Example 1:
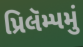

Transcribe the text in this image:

પ્રિલૅમ્પમું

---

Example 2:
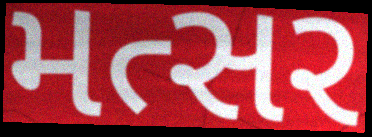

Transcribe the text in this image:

મત્સર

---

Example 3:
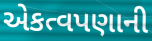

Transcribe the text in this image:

એકત્વપણાની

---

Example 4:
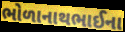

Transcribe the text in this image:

ભોળાનાથભાઈના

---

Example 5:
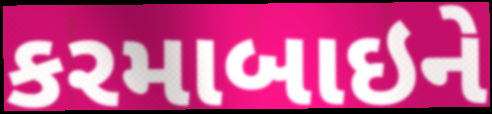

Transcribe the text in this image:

કરમાબાઇને